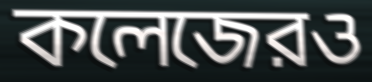
কলেজেরও